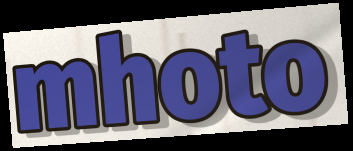
mhoto